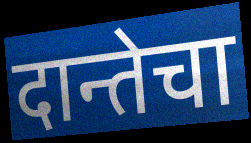
दान्तेचा